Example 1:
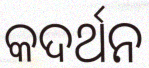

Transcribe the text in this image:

କଦର୍ଥନ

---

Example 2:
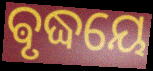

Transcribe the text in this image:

ଵୃଦ୍ଧୟେ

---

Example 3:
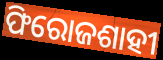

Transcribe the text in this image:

ଫିରୋଜଶାହୀ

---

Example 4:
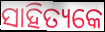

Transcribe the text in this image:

ସାହିତ୍ୟକେ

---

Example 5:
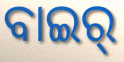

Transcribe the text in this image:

ବାଇର୍